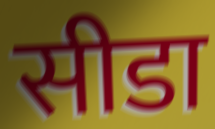
सीडा